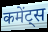
कमेंट्स